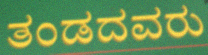
ತಂಡದವರು